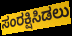
ಸಂರಕ್ಷಿಸಿಡಲು